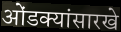
ओंडक्यांसारखे